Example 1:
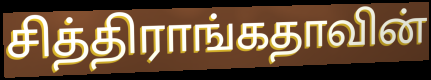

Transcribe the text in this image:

சித்திராங்கதாவின்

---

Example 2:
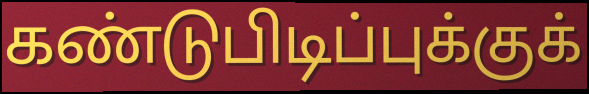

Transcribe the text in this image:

கண்டுபிடிப்புக்குக்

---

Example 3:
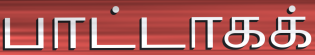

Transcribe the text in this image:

பாட்டாகக்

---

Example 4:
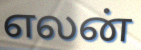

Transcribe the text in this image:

எலன்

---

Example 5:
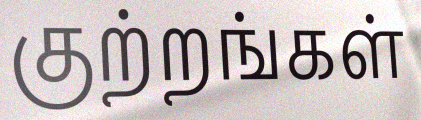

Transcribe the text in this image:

குற்றங்கள்